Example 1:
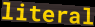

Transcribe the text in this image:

literal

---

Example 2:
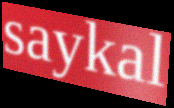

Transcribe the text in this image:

saykal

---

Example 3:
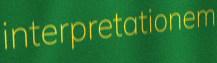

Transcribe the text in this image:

interpretationem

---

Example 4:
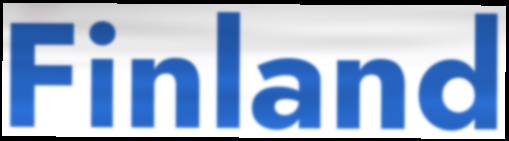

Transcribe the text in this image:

Finland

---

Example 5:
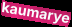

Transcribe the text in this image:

kaumarye